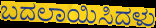
ಬದಲಾಯಿಸಿದಳು